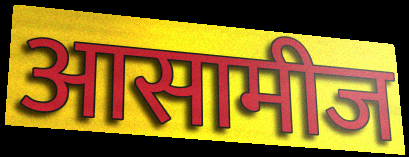
आसामीज